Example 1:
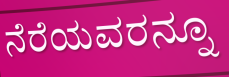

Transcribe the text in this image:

ನೆರೆಯವರನ್ನೂ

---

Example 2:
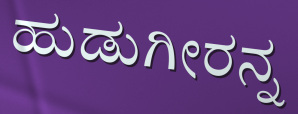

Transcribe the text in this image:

ಹುಡುಗೀರನ್ನ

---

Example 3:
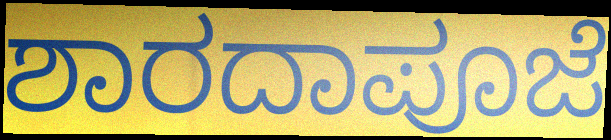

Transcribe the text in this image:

ಶಾರದಾಪೂಜೆ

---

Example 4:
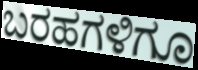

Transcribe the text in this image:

ಬರಹಗಳಿಗೂ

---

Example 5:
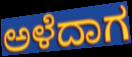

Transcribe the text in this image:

ಅಳೆದಾಗ